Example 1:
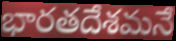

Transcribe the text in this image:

భారతదేశమనే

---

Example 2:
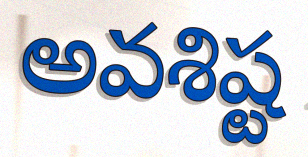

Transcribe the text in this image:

అవశిష్ట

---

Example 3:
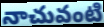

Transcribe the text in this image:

నాచువంటి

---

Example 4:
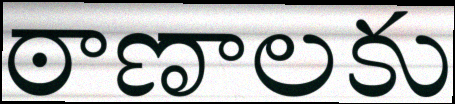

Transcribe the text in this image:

ఠాణాలకు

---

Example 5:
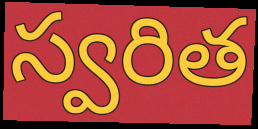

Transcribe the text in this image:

స్వరిత